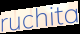
ruchita